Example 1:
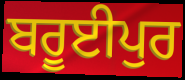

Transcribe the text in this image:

ਬਰੂਈਪੁਰ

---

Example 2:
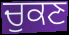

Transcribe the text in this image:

ਚੁਕਣ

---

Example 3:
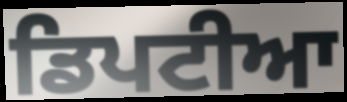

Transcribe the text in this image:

ਡਿਪਟੀਆ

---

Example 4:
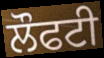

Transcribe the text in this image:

ਲੌਫਟੀ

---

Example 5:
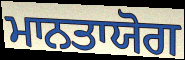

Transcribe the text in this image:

ਮਾਨਤਾਯੋਗ